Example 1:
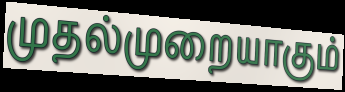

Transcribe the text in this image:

முதல்முறையாகும்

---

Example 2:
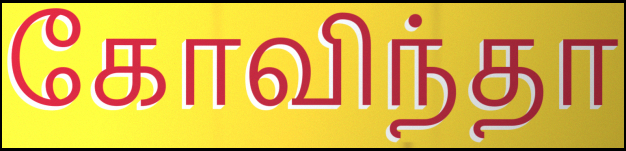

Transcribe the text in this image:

கோவிந்தா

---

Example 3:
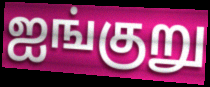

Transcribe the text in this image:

ஐங்குறு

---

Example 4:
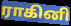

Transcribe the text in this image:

ராகினி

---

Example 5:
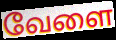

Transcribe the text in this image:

வேளை